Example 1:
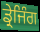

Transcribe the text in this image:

ਡ੍ਰੇਜਿੰਗ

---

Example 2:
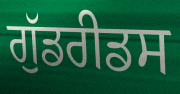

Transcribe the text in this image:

ਗੁੱਡਰੀਡਸ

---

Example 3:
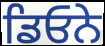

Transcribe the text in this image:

ਡਿਓਨੇ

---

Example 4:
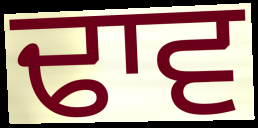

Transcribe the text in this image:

ਢਾਵ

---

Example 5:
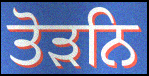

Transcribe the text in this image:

ਤੋੜਨਿ